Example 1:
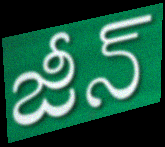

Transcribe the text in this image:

జీన్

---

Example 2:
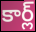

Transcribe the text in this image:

కార్ల్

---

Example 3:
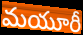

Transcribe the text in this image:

మయూరీ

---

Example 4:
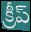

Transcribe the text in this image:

క్రీప్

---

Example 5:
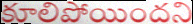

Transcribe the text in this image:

కూలిపోయిందని